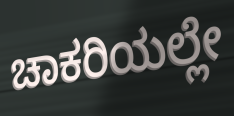
ಚಾಕರಿಯಲ್ಲೇ